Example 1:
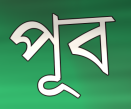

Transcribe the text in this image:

পূব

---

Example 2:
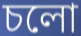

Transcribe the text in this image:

চলো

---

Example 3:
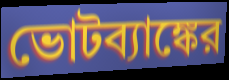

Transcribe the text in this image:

ভোটব্যাঙ্কের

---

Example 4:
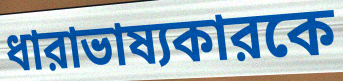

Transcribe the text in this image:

ধারাভাষ্যকারকে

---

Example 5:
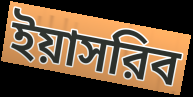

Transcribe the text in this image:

ইয়াসরিব